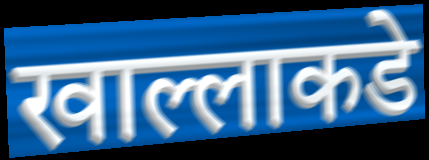
खाल्लाकडे